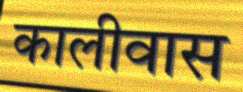
कालीवास